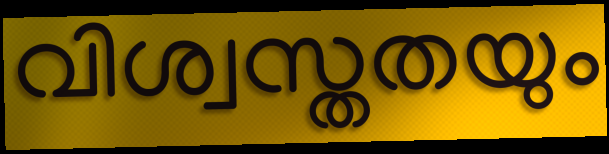
വിശ്വസ്തതയും